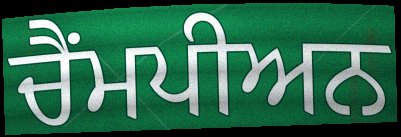
ਚੈਂਮਪੀਅਨ